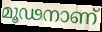
മൂഢനാണ്